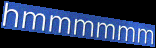
hmmmmmm